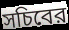
সচিবের